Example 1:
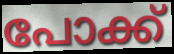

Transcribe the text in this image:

പോക്ക്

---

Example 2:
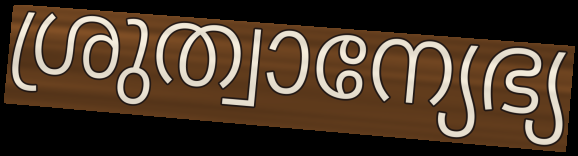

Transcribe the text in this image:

ശ്രുത്വാന്യേഭ്യ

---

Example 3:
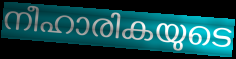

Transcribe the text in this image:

നീഹാരികയുടെ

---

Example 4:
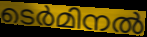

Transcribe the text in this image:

ടെർമിനൽ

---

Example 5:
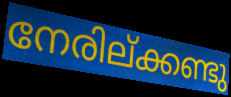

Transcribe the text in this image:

നേരില്ക്കണ്ടു